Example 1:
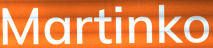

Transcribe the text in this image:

Martinko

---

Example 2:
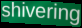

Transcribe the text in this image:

shivering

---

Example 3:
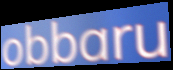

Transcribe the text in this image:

obbaru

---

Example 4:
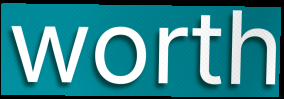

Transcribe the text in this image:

worth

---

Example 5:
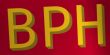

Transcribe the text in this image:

BPH